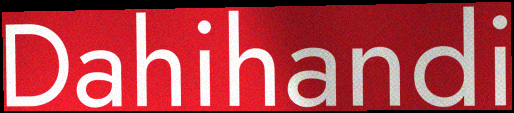
Dahihandi